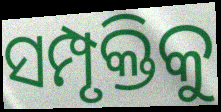
ସମ୍ପୃକ୍ତିକୁ